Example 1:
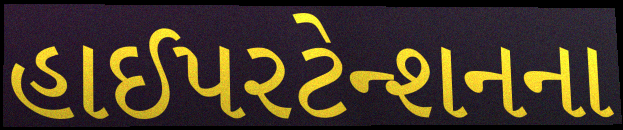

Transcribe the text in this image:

હાઈપરટેન્શનના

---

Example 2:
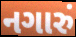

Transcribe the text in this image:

નગારું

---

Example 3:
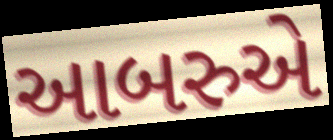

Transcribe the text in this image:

આબરુએ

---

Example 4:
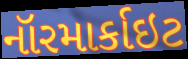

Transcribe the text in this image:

નૉરમાર્કાઇટ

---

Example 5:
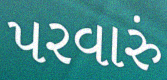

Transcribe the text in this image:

પરવારું